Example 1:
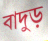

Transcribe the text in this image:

বাদুড়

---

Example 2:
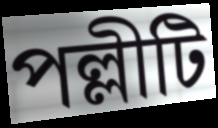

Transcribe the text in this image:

পল্লীটি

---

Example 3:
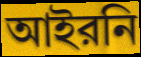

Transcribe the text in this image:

আইরনি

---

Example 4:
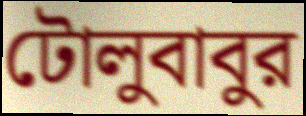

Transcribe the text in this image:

টোলুবাবুর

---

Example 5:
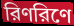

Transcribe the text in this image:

রিণরিণে